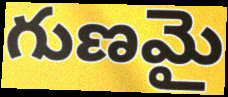
గుణమై